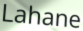
Lahane